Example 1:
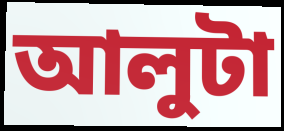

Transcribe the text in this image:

আলুটা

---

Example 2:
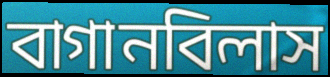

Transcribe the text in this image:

বাগানবিলাস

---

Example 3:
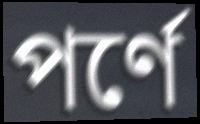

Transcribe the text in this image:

পর্ণে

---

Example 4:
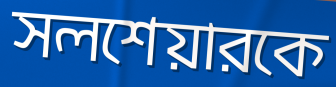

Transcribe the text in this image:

সলশেয়ারকে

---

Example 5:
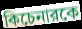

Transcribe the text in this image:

কিচেনারকে